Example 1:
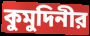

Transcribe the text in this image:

কুমুদিনীর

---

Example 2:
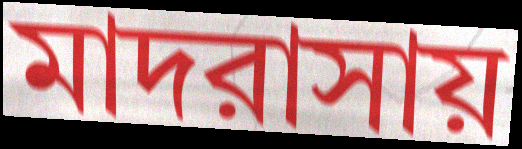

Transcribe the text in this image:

মাদরাসায়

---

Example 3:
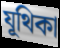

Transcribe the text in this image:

যূথিকা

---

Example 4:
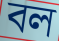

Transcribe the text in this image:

বল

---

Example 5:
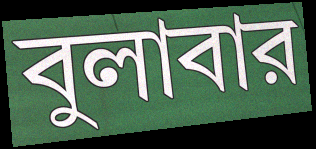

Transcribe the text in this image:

বুলাবার